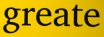
greate